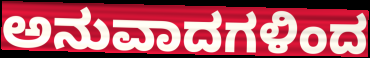
ಅನುವಾದಗಳಿಂದ